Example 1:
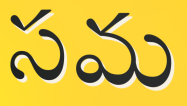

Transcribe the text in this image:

సమ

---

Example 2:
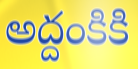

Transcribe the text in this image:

అద్దంకికి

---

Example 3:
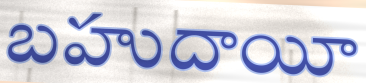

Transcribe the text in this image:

బహుదాయీ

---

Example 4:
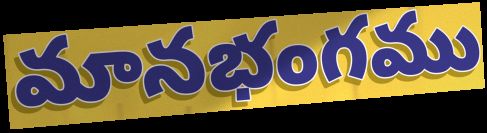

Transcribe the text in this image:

మానభంగము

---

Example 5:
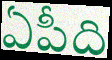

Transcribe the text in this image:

ఏపీది